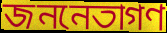
জননেতাগণ